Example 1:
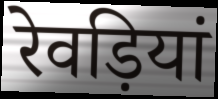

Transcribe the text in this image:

रेवड़ियां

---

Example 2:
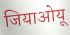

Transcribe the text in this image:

जियाओयू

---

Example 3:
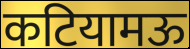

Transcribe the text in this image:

कटियामऊ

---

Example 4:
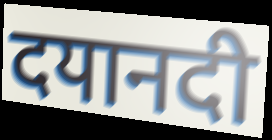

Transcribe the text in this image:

दयानदी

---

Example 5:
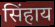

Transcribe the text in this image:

सिंहाय